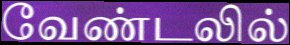
வேண்டலில்